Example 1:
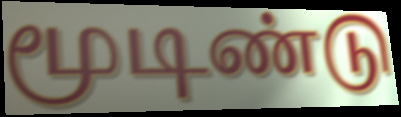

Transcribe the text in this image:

மூடிண்டு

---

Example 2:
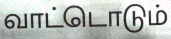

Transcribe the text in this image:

வாட்டொடும்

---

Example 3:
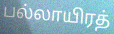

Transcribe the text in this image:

பல்லாயிரத்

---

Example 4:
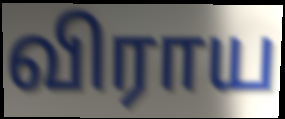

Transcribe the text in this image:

விராய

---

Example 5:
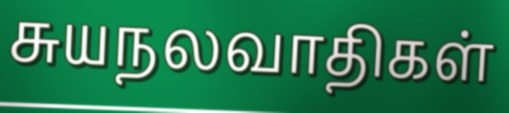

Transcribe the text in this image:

சுயநலவாதிகள்